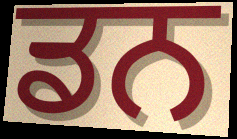
ਡਨ